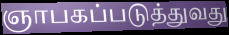
ஞாபகப்படுத்துவது